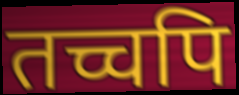
तच्चपि